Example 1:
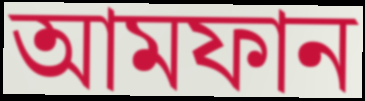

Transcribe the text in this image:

আমফান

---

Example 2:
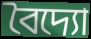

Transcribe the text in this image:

বৈদ্যো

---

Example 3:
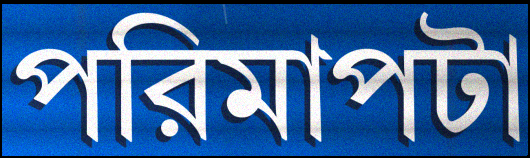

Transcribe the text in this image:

পরিমাপটা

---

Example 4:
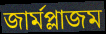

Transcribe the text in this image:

জার্মপ্লাজম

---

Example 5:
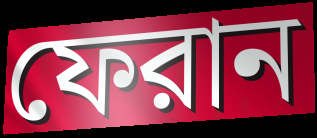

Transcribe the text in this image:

ফেরান